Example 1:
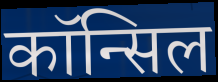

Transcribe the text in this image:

कॉन्सिल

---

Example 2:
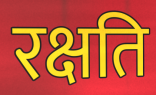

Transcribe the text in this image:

रक्षति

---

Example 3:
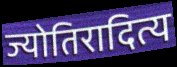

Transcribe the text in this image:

ज्योतिरादित्य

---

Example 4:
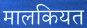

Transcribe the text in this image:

मालकियत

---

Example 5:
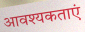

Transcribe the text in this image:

आवश्‍यकताएं